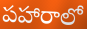
పహారాలో